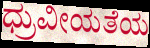
ಧ್ರುವೀಯತೆಯ